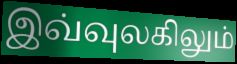
இவ்வுலகிலும்